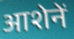
आशेनें